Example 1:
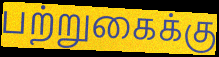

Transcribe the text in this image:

பற்றுகைக்கு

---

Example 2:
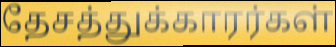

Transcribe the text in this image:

தேசத்துக்காரர்கள்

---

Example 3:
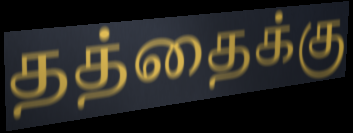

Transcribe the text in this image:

தத்தைக்கு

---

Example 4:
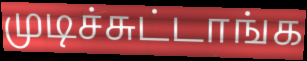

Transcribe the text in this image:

முடிச்சுட்டாங்க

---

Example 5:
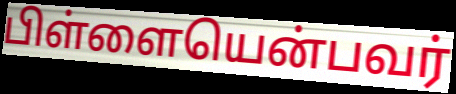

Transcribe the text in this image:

பிள்ளையென்பவர்